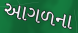
આગળના